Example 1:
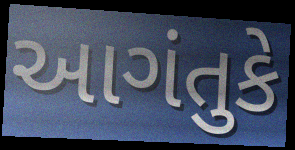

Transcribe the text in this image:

આગંતુકે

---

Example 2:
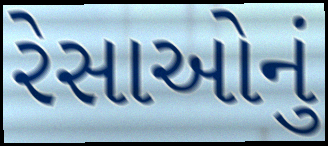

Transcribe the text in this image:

રેસાઓનું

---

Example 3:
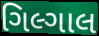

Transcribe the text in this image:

ગિલ્ગાલ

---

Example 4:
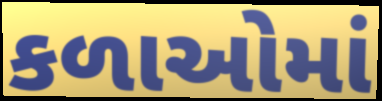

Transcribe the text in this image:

કળાઓમાં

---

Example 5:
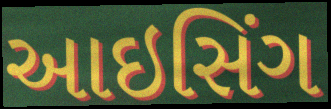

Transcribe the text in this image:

આઇસિંગ